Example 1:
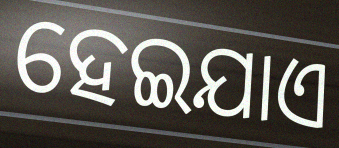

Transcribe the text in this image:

ହେଇଯାଏ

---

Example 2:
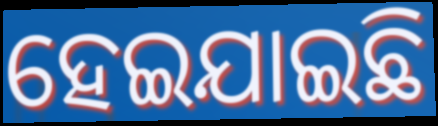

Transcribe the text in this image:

ହେଇଯାଇଛି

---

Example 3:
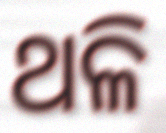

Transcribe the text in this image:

ଥଳି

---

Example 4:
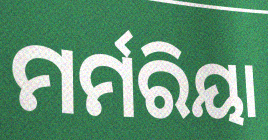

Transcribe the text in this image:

ମର୍ମରିୟା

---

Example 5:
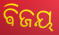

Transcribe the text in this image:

ଵିଜୟ